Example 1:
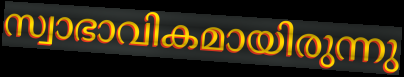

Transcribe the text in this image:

സ്വാഭാവികമായിരുന്നു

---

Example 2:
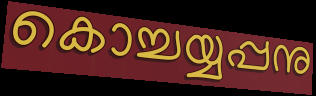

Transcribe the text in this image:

കൊച്ചയ്യപ്പനു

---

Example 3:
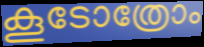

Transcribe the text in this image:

കൂടോത്രോം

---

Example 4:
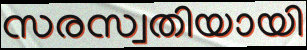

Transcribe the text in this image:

സരസ്വതിയായി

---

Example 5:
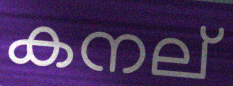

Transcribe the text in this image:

കനല്